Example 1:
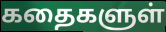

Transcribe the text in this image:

கதைகளுள்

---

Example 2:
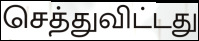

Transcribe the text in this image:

செத்துவிட்டது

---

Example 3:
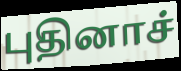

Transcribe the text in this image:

புதினாச்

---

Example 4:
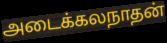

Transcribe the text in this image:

அடைக்கலநாதன்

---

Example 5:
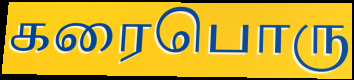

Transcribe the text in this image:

கரைபொரு